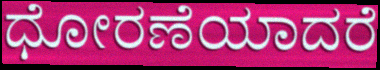
ಧೋರಣೆಯಾದರೆ